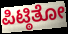
ಪಿಟ್ಠಿತೋ